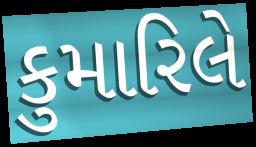
કુમારિલે